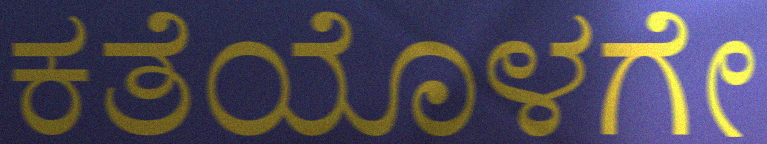
ಕತೆಯೊಳಗೇ